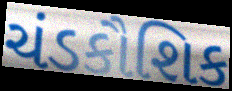
ચંડકૌશિક